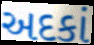
અદકાં